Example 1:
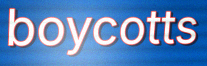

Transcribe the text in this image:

boycotts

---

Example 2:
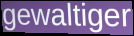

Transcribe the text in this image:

gewaltiger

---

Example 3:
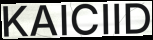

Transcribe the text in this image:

KAICIID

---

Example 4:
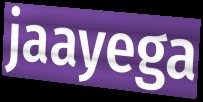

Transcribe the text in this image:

jaayega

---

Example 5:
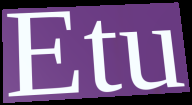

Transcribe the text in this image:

Etu